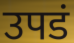
उपडं